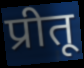
प्रीतू